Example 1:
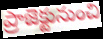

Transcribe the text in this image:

ప్రాజెక్టునుంచి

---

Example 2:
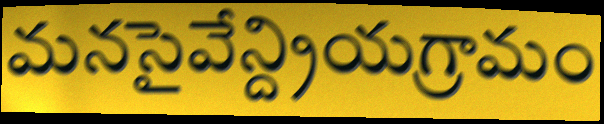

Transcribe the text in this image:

మనసైవేన్ద్రియగ్రామం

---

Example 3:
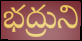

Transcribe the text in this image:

భద్రుని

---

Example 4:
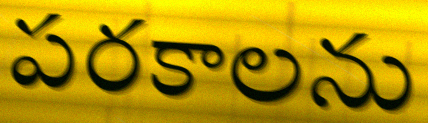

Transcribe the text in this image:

పరకాలను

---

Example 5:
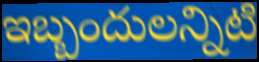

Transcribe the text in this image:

ఇబ్బందులన్నిటి